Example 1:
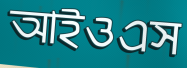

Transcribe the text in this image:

আইওএস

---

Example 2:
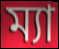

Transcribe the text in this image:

ম্যা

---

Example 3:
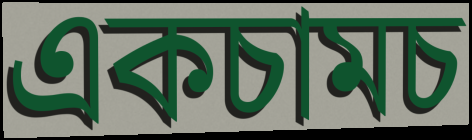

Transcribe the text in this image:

একচামচ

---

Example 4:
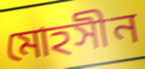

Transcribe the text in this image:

মোহসীন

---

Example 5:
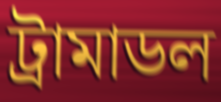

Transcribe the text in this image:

ট্রামাডল